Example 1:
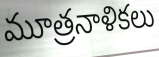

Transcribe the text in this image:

మూత్రనాళికలు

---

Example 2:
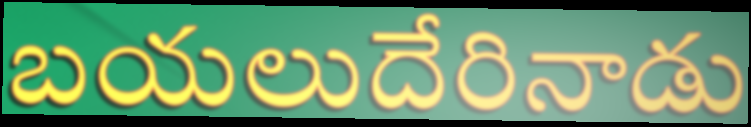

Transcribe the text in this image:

బయలుదేరినాడు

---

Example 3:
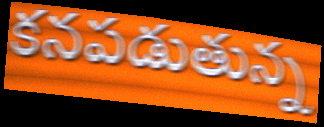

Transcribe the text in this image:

కనపడుతున్న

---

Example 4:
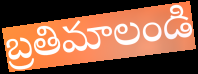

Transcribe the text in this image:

బ్రతిమాలండి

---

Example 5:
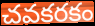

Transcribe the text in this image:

చవకరకం